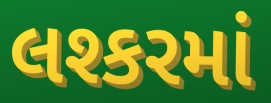
લશ્કરમાં